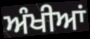
ਅੰਖੀਆਂ